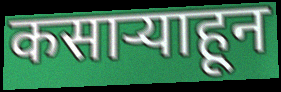
कसाऱ्याहून